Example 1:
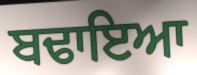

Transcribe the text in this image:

ਬਢਾਇਆ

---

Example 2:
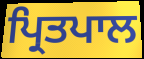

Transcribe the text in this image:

ਪ੍ਰਿਤਪਾਲ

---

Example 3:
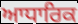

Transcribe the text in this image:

ਆਧਾਰਿਕ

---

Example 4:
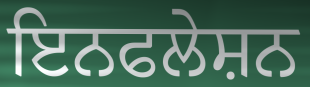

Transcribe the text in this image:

ਇਨਫਲੇਸ਼ਨ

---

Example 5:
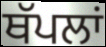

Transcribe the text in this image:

ਥੱਪਲਾਂ